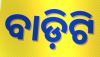
ବାଡ଼ିଟି